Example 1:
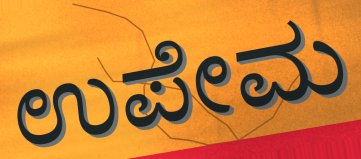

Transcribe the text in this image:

ಉಪೇಮ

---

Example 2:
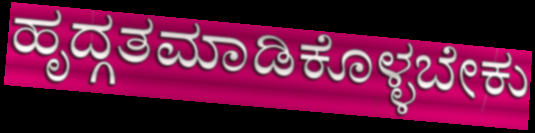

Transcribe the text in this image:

ಹೃದ್ಗತಮಾಡಿಕೊಳ್ಳಬೇಕು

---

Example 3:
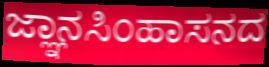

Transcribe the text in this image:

ಜ್ಞಾನಸಿಂಹಾಸನದ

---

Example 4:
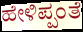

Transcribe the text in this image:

ಹೇಳಿಪ್ಪಂತೆ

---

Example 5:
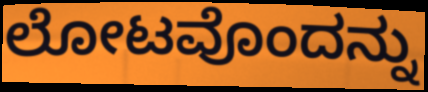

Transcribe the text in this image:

ಲೋಟವೊಂದನ್ನು